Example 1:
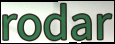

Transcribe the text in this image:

rodar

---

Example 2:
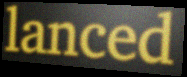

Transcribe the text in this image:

lanced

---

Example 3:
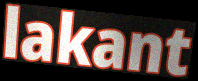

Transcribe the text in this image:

lakant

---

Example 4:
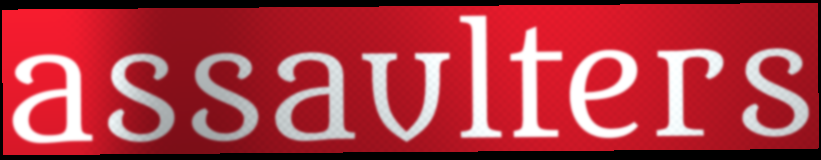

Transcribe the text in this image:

assaulters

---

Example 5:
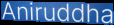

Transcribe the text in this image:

Aniruddha